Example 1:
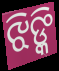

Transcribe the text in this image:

ଝିଙ୍କି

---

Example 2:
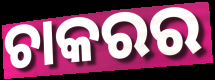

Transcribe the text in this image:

ଚାକରର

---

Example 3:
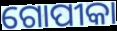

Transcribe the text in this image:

ଗୋପୀକା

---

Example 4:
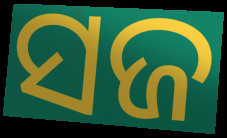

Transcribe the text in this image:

ସଜ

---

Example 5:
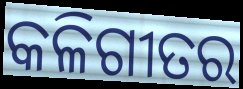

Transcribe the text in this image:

କଳିଗୀତର